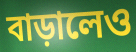
বাড়ালেও